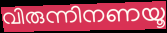
വിരുന്നിനണയൂ